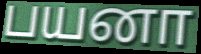
பயனா